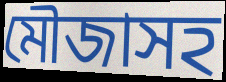
মৌজাসহ